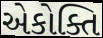
એકોક્તિ